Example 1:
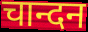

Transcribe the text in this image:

चान्दन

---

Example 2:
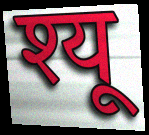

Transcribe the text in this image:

श्यू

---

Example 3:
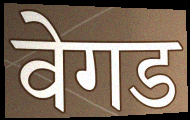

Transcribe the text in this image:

वेगड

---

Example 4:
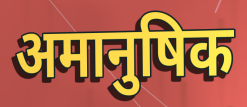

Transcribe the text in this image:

अमानुषिक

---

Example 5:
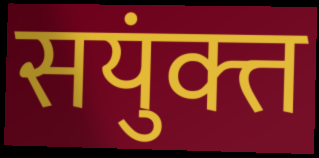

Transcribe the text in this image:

सयुंक्त